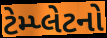
ટેમ્પ્લેટનો